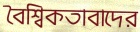
বৈশ্বিকতাবাদের